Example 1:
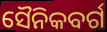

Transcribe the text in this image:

ସୈନିକବର୍ଗ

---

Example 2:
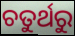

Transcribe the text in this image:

ଚତୁର୍ଥରୁ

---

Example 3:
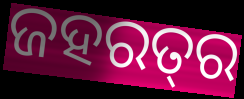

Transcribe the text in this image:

ଜହରତ୍‍ର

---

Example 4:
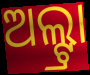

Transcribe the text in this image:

ଅଲ୍ଟ୍ରା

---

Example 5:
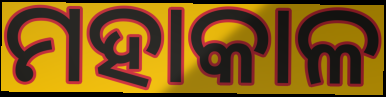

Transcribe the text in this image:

ମହାକାଳ